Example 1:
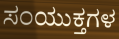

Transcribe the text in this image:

ಸಂಯುಕ್ತಗಳ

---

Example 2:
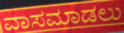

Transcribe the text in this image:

ವಾಸಮಾಡಲು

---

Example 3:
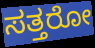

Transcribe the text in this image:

ಸತ್ತರೋ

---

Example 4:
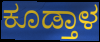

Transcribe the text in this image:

ಕೂಡ್ತಾಳ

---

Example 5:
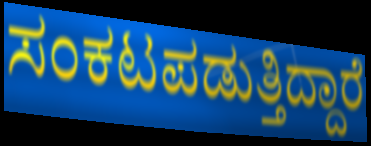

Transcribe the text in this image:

ಸಂಕಟಪಡುತ್ತಿದ್ದಾರೆ